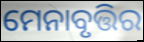
ମେନାବୃତ୍ତିର